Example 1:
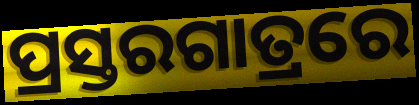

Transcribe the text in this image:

ପ୍ରସ୍ତରଗାତ୍ରରେ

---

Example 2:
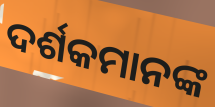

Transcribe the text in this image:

ଦର୍ଶକମାନଙ୍କ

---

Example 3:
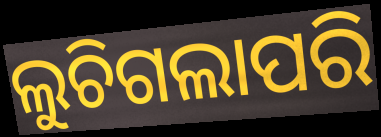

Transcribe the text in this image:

ଲୁଚିଗଲାପରି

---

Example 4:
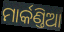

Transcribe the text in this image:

ମାର୍କଣ୍ତିଆ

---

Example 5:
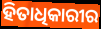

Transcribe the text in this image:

ହିତାଧିକାରୀର